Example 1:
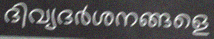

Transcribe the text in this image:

ദിവ്യദർശനങ്ങളെ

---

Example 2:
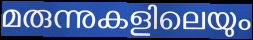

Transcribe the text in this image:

മരുന്നുകളിലെയും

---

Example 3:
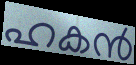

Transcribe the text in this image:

ഹകൻ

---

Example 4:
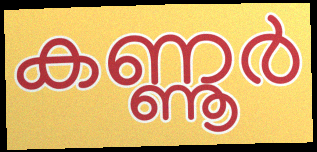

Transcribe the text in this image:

കണ്ണൂർ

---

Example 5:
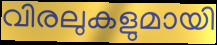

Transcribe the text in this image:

വിരലുകളുമായി